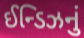
ઈન્ડિઝનું